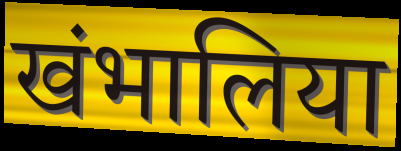
खंभालिया